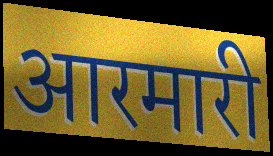
आरमारी